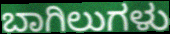
ಬಾಗಿಲುಗಳು